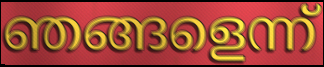
ഞങ്ങളെന്ന്